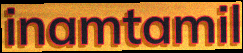
inamtamil